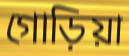
গোড়িয়া